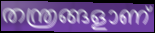
തന്ത്രങ്ങളാണ്